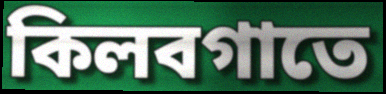
কিলবগাতে